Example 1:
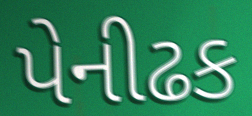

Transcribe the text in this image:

પેનીઢક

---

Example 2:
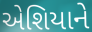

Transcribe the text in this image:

એશિયાને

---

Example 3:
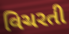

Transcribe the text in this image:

વિચરતી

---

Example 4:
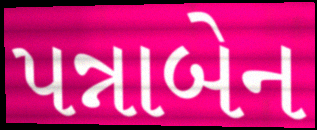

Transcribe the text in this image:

પન્નાબેન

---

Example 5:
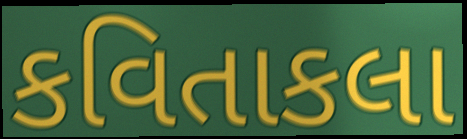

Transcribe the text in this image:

કવિતાકલા